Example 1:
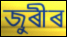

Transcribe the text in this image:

জুৰীৰ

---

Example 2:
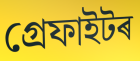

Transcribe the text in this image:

গ্ৰেফাইটৰ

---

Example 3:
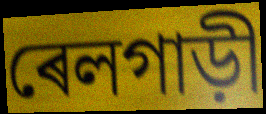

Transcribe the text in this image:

ৰেলগাড়ী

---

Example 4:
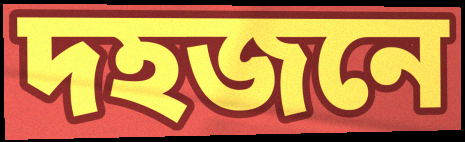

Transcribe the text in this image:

দহজনে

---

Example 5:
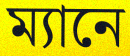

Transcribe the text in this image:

ম্যানে